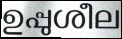
ഉപ്പുശീല